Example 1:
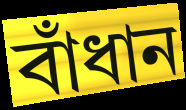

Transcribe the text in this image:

বাঁধান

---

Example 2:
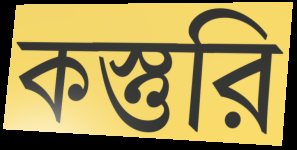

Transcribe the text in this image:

কস্তুরি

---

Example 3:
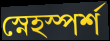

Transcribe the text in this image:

স্নেহস্পর্শ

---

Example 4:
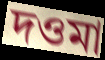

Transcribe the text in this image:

দওমা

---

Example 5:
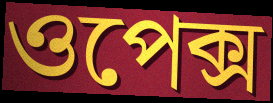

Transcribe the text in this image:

ওপেক্স